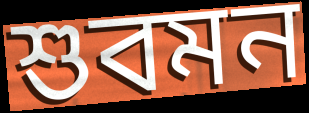
শুবমন